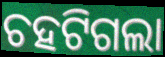
ଚହଟିଗଲା